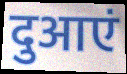
दुआएं